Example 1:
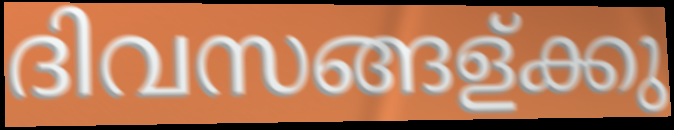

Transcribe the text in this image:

ദിവസങ്ങള്ക്കു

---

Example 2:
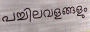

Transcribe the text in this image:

പച്ചിലവളങ്ങളും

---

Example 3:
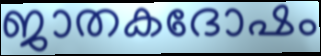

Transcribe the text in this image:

ജാതകദോഷം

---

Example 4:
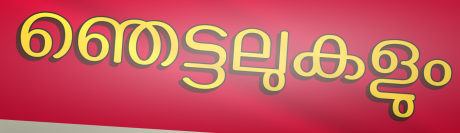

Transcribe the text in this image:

ഞെട്ടലുകളും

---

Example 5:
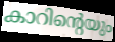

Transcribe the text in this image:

കാറിന്റെയും